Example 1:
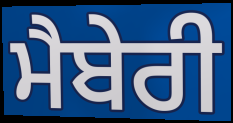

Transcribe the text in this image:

ਮੈਬੇਰੀ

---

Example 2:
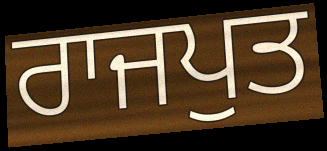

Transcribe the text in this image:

ਰਾਜਪੁਤ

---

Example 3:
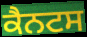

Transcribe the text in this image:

ਕੈਨਟਸ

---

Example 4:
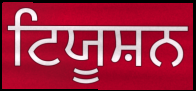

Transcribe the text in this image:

ਟਿਯੂਸ਼ਨ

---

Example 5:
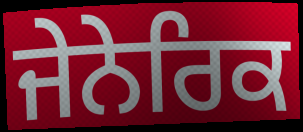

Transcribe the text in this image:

ਜੇਨੇਰਿਕ